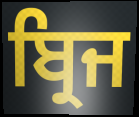
ਬ੍ਰਿਜ